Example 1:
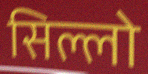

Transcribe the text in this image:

सिल्लो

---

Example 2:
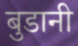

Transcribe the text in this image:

बुडानी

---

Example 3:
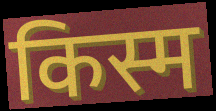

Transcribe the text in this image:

किस्म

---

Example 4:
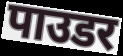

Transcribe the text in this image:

पाउडर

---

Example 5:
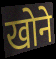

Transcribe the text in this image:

खोने